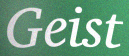
Geist